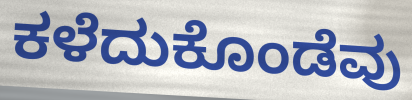
ಕಳೆದುಕೊಂಡೆವು